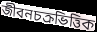
জীবনচক্রভিত্তিক